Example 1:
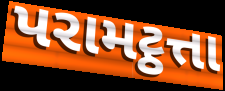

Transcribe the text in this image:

પરામટ્ઠત્તા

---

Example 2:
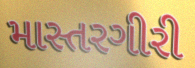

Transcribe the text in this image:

માસ્તરગીરી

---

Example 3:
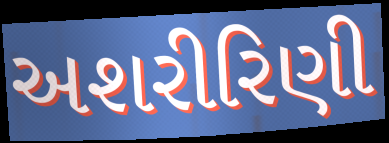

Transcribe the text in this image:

અશરીરિણી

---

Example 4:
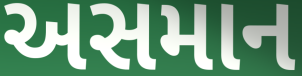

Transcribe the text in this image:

અસમાન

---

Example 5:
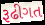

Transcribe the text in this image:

રૂઢીગત